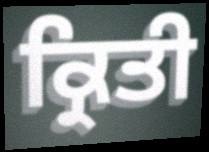
ਕ੍ਰਿਤੀ